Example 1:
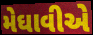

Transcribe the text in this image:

મેઘાવીએ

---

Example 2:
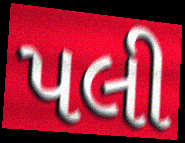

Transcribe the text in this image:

પલી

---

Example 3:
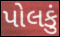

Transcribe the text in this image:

પોલકું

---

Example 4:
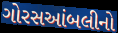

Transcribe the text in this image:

ગોરસઆંબલીનો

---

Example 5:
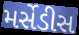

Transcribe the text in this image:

મર્સેડીસ